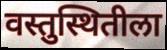
वस्तुस्थितीला